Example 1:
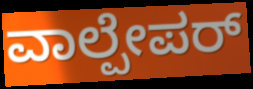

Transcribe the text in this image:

ವಾಲ್ಪೇಪರ್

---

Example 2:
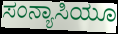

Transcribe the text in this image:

ಸಂನ್ಯಾಸಿಯೂ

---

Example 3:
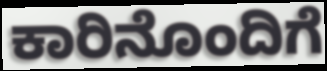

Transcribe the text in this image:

ಕಾರಿನೊಂದಿಗೆ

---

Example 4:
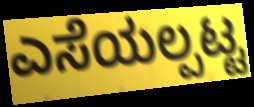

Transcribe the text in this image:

ಎಸೆಯಲ್ಪಟ್ಟ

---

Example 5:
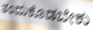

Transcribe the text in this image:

ತಂದುಕೊಡಬೇಕು